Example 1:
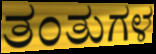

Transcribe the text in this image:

ತಂತುಗಳ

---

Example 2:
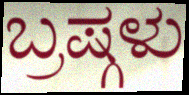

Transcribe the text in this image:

ಬ್ರಷ್ಗಳು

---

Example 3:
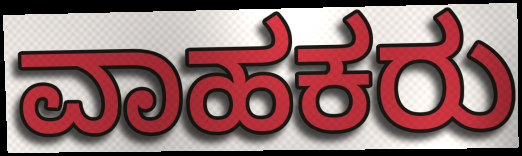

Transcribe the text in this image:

ವಾಹಕರು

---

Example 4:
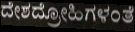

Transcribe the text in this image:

ದೇಶದ್ರೋಹಿಗಳಂತೆ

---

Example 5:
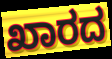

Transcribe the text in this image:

ಖಾರದ